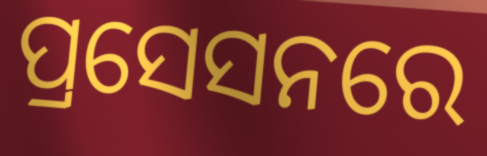
ପ୍ରସେସନରେ